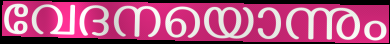
വേദനയൊന്നും